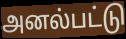
அனல்பட்டு